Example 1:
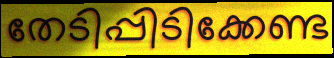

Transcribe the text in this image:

തേടിപ്പിടിക്കേണ്ട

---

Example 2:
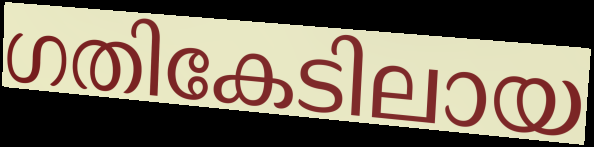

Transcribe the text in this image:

ഗതികേടിലായ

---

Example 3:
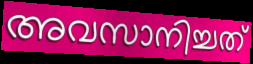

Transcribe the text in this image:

അവസാനിച്ചത്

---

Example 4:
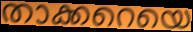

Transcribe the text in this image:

താക്കറെയെ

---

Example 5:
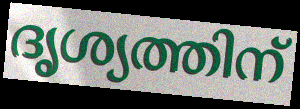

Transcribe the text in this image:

ദൃശ്യത്തിന്